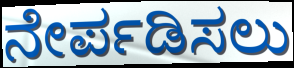
ನೇರ್ಪಡಿಸಲು